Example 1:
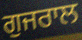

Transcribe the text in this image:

ਗੁਜਰਾਲ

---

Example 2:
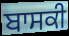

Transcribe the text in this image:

ਬਾਸਕੀ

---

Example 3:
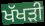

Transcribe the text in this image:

ਖੱਖੜੀ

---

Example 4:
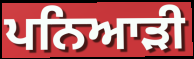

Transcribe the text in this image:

ਪਨਿਆੜੀ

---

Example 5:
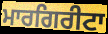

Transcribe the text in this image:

ਮਾਰਗਿਰੀਟਾ